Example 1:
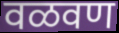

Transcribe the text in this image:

वळवण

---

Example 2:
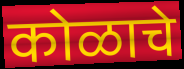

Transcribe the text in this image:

कोळाचे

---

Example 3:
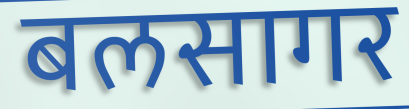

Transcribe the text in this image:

बलसागर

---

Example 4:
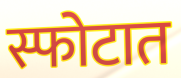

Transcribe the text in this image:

स्फोटात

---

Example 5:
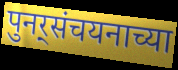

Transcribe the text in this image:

पुनर्संचयनाच्या